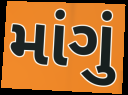
માંગું